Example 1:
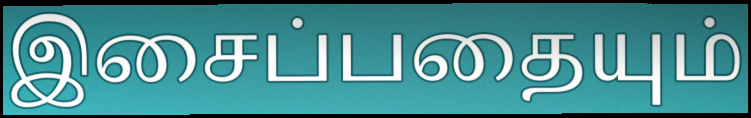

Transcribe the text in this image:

இசைப்பதையும்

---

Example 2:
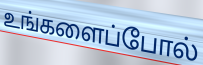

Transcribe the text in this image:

உங்களைப்போல்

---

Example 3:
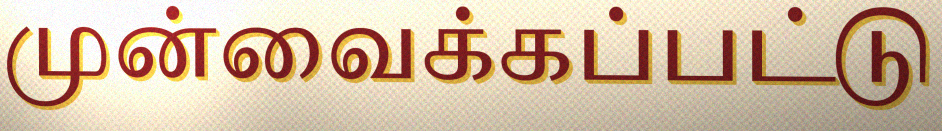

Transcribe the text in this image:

முன்வைக்கப்பட்டு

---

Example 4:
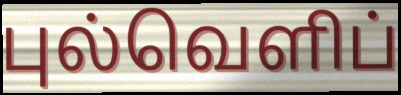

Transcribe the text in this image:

புல்வெளிப்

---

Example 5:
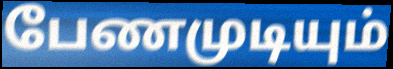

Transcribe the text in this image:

பேணமுடியும்